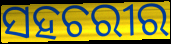
ସହଚରୀର